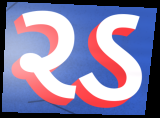
રડ